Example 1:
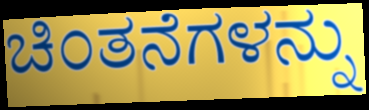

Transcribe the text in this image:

ಚಿಂತನೆಗಳನ್ನು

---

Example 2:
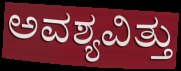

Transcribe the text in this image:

ಅವಶ್ಯವಿತ್ತು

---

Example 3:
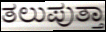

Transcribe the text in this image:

ತಲುಪುತ್ತಾ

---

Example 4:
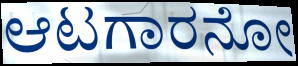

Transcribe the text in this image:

ಆಟಗಾರನೋ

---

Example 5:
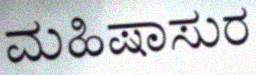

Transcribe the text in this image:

ಮಹಿಷಾಸುರ